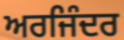
ਅਰਜਿੰਦਰ